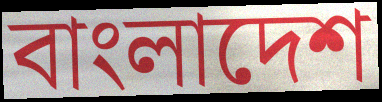
বাংলাদেশ